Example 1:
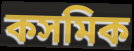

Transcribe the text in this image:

কসমিক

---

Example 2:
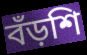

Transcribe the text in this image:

বঁড়শি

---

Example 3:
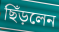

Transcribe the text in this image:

ছিঁড়লেন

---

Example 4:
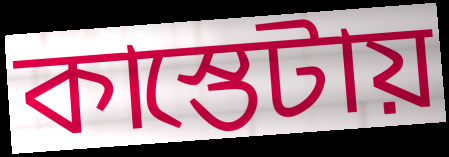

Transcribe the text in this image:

কাস্তেটায়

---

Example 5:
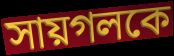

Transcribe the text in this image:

সায়গলকে